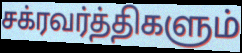
சக்ரவர்த்திகளும்